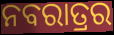
ନବରାତ୍ରର